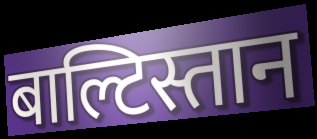
बाल्टिस्तान